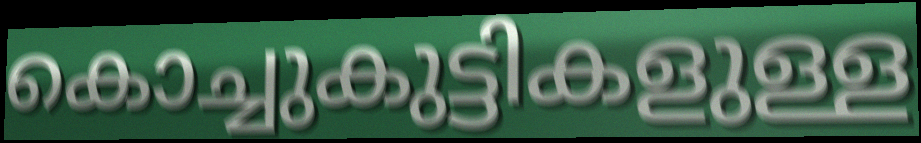
കൊച്ചുകുട്ടികളുള്ള